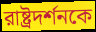
রাষ্ট্রদর্শনকে